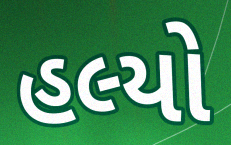
હલ્યો